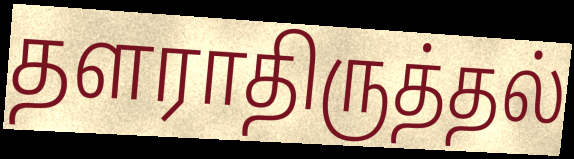
தளராதிருத்தல்